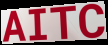
AITC